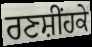
ਰਣਸ਼ੀਂਹਕੇ